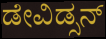
ಡೇವಿಡ್ಸನ್